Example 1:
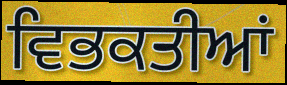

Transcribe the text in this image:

ਵਿਭਕਤੀਆਂ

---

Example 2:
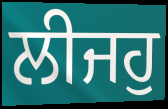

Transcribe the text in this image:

ਲੀਜਹੁ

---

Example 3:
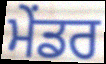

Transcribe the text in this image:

ਮੇਂਡਰ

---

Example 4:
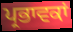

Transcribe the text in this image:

ਪ੍ਰਭਾਵਕਾਂ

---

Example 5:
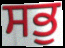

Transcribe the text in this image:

ਸਭੁ